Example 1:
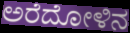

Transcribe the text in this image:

ಅರೆದೋಳಿನ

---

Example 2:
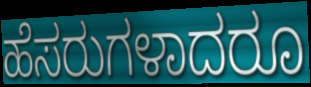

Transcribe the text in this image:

ಹೆಸರುಗಳಾದರೂ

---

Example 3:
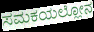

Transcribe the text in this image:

ಸಮಕಯಲ್ಲೋನ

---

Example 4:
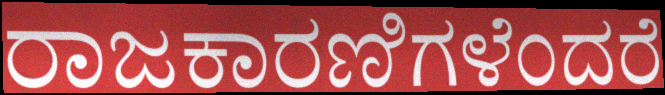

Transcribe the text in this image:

ರಾಜಕಾರಣಿಗಳೆಂದರೆ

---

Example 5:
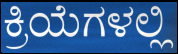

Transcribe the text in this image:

ಕ್ರಿಯೆಗಳಲ್ಲಿ